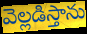
వెల్లడిస్తాను